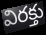
విరక్తు